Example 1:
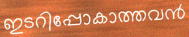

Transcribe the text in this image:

ഇടറിപ്പോകാത്തവൻ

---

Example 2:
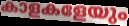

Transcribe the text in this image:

കാളകളേയും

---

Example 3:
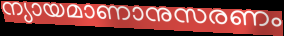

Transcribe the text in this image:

ന്യായമാണാനുസരണം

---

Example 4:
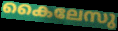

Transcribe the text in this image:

കൈലേസു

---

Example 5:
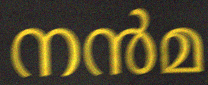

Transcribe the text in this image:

നൻമ